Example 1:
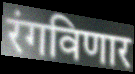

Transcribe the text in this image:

रंगविणार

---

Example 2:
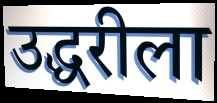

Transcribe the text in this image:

उद्धरीला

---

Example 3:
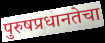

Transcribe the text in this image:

पुरुषप्रधानतेचा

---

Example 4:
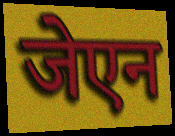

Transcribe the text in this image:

जेएन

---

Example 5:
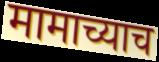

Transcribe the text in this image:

मामाच्याच